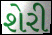
શેરી